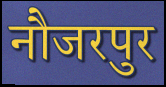
नौजरपुर